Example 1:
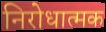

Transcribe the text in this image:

निरोधात्मक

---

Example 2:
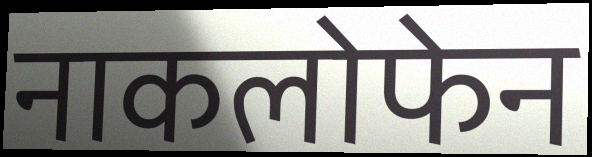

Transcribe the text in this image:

नाकलोफेन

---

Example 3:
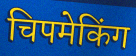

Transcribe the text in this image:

चिपमेकिंग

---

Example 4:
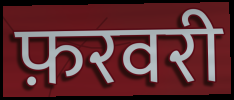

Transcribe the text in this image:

फ़रवरी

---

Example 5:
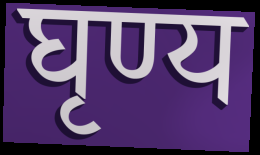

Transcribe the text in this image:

घृण्य